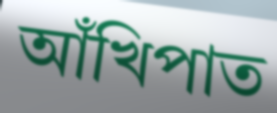
আঁখিপাত